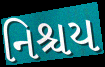
નિશ્ચય